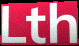
Lth